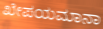
ಖೇಪಯಮಾನಾ